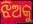
ଝିଅକୁ